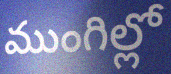
ముంగిల్లో